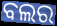
ବଲର